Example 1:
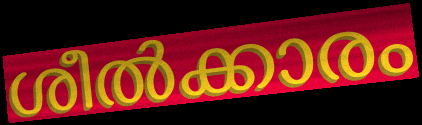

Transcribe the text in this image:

ശീൽക്കാരം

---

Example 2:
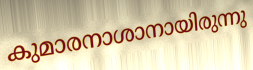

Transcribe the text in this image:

കുമാരനാശാനായിരുന്നു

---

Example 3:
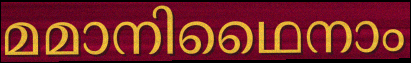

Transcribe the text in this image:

മമാനിഥൈനാം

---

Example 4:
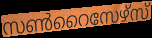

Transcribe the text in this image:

സൺറൈസേഴ്സ്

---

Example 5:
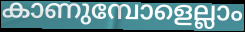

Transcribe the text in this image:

കാണുമ്പോളെല്ലാം